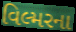
વિલ્મરના